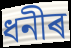
ধনীৰ